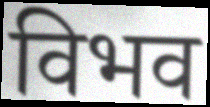
विभव